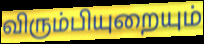
விரும்பியுறையும்